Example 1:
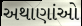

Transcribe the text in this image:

અથાણાંઓ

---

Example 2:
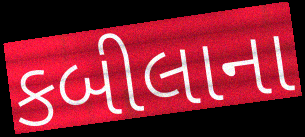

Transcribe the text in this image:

કબીલાના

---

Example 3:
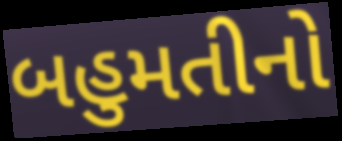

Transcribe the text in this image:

બહુમતીનો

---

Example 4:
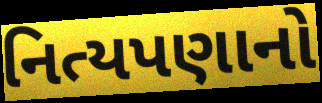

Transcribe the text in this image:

નિત્યપણાનો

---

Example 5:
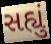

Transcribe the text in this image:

સહ્યું